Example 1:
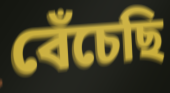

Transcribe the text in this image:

বেঁচেছি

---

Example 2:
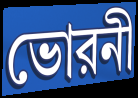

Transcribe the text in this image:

ভোরনী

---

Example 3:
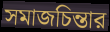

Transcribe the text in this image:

সমাজচিন্তার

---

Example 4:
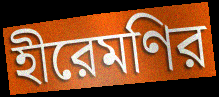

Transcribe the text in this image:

হীরেমণির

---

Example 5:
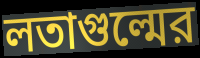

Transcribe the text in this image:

লতাগুল্মের